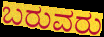
ಬರುವರು